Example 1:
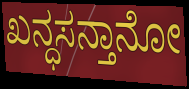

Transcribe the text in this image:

ಖನ್ಧಸನ್ತಾನೋ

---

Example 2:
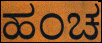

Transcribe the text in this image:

ಹಂಚ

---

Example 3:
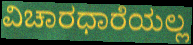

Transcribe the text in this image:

ವಿಚಾರಧಾರೆಯಲ್ಲ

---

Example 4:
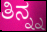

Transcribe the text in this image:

ತಿನ್ನ್ನ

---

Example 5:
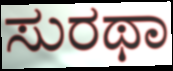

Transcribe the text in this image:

ಸುರಥಾ